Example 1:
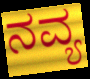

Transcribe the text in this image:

ನವ್ಯ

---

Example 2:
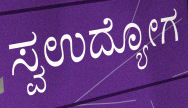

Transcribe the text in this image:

ಸ್ವಉದ್ಯೋಗ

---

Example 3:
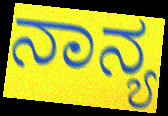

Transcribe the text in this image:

ನಾನ್ಯ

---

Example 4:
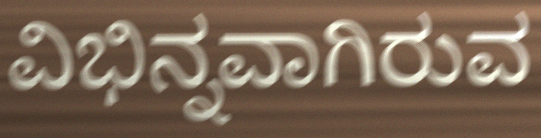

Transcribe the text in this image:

ವಿಭಿನ್ನವಾಗಿರುವ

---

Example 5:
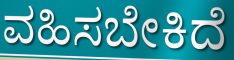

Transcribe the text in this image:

ವಹಿಸಬೇಕಿದೆ